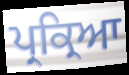
ਪ੍ਰਕ੍ਰਿਆ